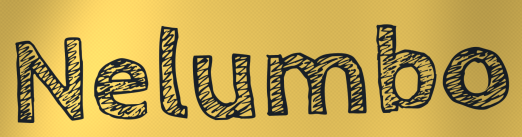
Nelumbo